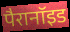
पैरानॉइड